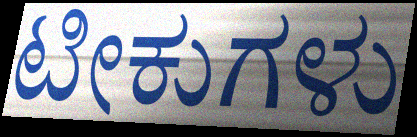
ಟೀಕುಗಳು